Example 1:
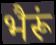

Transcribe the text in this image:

भैरूं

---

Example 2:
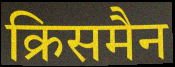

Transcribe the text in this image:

क्रिसमैन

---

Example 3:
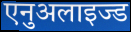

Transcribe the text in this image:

एनुअलाइज्ड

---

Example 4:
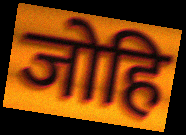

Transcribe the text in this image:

जोहि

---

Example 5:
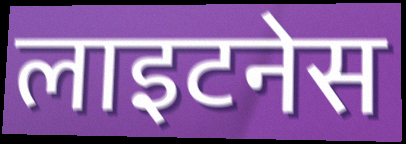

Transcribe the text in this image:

लाइटनेस